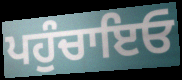
ਪਹੁੰਚਾਇਓ